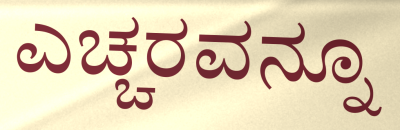
ಎಚ್ಚರವನ್ನೂ